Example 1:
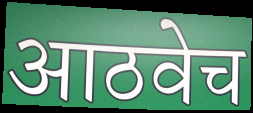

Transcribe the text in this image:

आठवेच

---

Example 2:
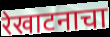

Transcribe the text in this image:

रेखाटनाचा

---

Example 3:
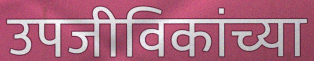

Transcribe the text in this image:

उपजीविकांच्या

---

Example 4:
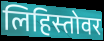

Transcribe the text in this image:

लिहिस्तोवर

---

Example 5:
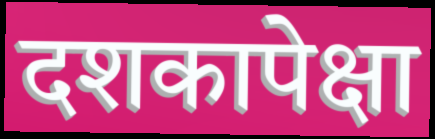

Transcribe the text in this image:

दशकापेक्षा